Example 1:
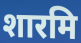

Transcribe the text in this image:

शारमि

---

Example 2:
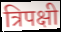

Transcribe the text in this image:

त्रिपक्षी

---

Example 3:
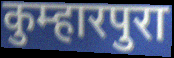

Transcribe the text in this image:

कुम्हारपुरा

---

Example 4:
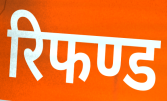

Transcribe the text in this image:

रिफण्ड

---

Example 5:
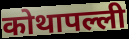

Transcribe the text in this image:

कोथापल्ली